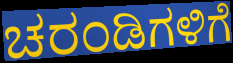
ಚರಂಡಿಗಳಿಗೆ